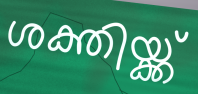
ശക്തിയ്ക്ക്